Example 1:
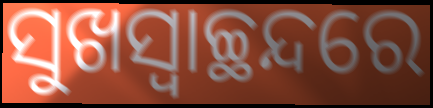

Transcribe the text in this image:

ସୁଖସ୍ୱାଚ୍ଛନ୍ଦରେ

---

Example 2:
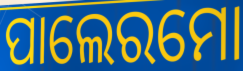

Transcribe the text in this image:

ପାଲେରମୋ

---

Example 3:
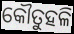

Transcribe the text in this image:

କୌତୁହଳି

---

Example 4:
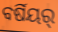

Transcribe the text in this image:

ବର୍ଷିୟର୍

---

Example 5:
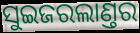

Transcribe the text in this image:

ସୁଇଜରଲାଣ୍ତର